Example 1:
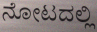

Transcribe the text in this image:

ನೋಟದಲ್ಲಿ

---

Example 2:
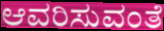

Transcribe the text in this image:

ಆವರಿಸುವಂತೆ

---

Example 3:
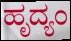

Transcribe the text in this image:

ಹೃದ್ಯಂ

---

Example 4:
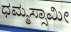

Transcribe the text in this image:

ಧಮ್ಮಸ್ಸಾಮೀ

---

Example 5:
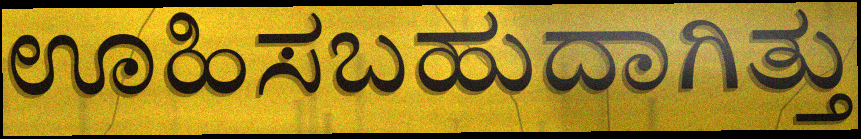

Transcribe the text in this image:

ಊಹಿಸಬಹುದಾಗಿತ್ತು